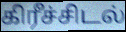
கிரீச்சிடல்